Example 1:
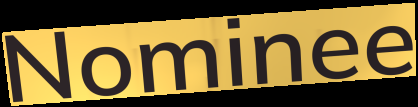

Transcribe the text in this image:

Nominee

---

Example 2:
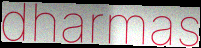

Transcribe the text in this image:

dharmas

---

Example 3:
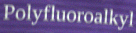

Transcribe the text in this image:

Polyfluoroalkyl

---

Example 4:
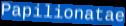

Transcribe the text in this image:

Papilionatae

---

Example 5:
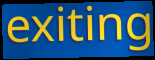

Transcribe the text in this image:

exiting